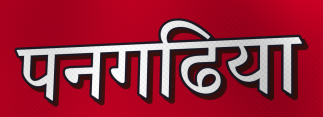
पनगढिया